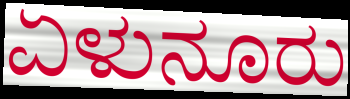
ಏಳುನೂರು